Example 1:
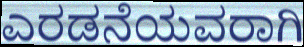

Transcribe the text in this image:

ಎರಡನೆಯವರಾಗಿ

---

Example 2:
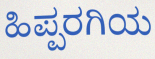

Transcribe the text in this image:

ಹಿಪ್ಪರಗಿಯ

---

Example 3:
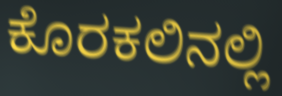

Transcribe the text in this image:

ಕೊರಕಲಿನಲ್ಲಿ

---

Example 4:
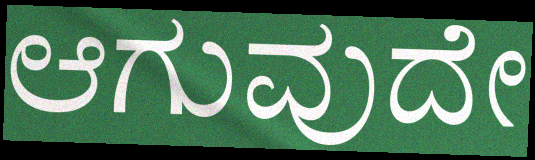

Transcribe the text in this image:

ಆಗುವುದೇ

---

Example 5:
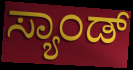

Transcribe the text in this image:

ಸ್ಯಾಂಡ್